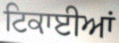
ਟਿਕਾਈਆਂ